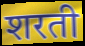
शरती